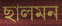
ছালমন